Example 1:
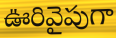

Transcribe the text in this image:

ఊరివైపుగా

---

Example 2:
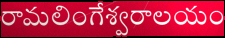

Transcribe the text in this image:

రామలింగేశ్వరాలయం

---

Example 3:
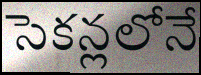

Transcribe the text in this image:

సెకన్లలోనే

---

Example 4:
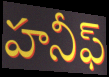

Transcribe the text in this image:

హనీఫ్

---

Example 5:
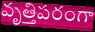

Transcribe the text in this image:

వృత్తిపరంగా